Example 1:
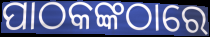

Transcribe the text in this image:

ପାଠକଙ୍କଠାରେ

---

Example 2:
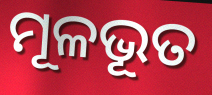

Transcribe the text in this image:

ମୂଳଭୂତ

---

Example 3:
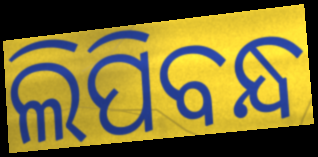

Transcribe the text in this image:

ଲିପିବନ୍ଧ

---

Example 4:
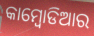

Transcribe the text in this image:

କାମ୍ବୋଡିଆର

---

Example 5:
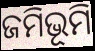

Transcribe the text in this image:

ଜମିଭୂମି